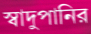
স্বাদুপানির